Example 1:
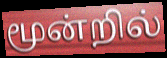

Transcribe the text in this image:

மூன்றில்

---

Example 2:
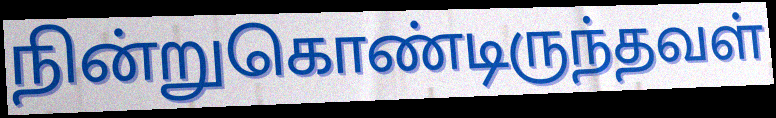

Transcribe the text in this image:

நின்றுகொண்டிருந்தவள்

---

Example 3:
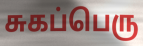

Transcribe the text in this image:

சுகப்பெரு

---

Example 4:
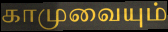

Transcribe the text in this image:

காமுவையும்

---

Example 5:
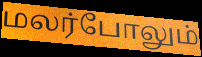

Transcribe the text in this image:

மலர்போலும்